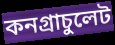
কনগ্রাচুলেট